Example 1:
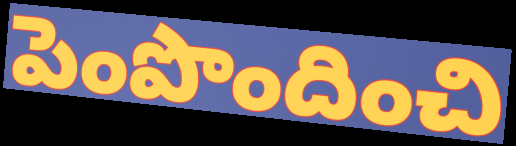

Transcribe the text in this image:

పెంపొందించి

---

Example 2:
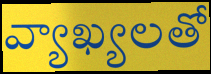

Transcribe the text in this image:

వ్యాఖ్యలతో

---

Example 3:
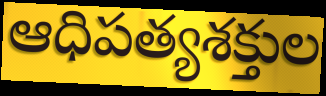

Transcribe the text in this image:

ఆధిపత్యశక్తుల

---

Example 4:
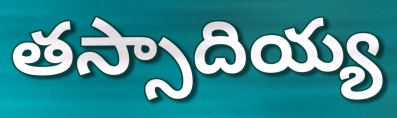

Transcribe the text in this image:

తస్సాదియ్య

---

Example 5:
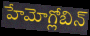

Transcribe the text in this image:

హేమోగ్లోబిన్